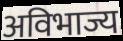
अविभाज्य